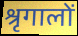
श्रृगालों